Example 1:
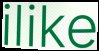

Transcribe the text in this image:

ilike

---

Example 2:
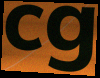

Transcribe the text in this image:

cg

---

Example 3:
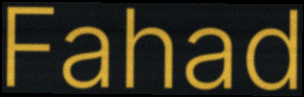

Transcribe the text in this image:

Fahad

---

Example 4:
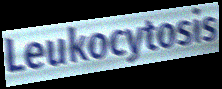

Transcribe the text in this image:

Leukocytosis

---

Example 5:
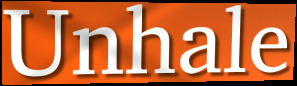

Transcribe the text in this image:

Unhale